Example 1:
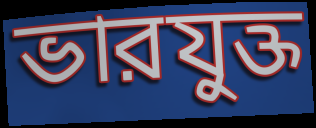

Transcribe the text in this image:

ভারযুক্ত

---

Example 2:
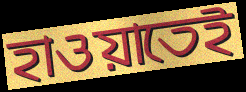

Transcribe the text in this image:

হাওয়াতেই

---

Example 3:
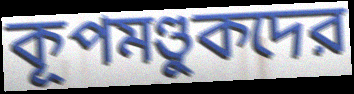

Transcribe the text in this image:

কূপমণ্ডুকদের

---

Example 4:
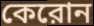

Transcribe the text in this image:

কেরোন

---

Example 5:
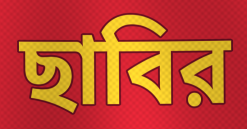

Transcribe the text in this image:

ছাবির